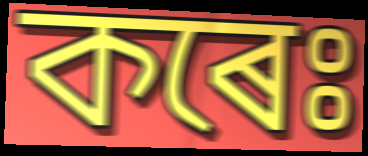
কৰেঃ